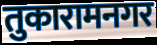
तुकारामनगर